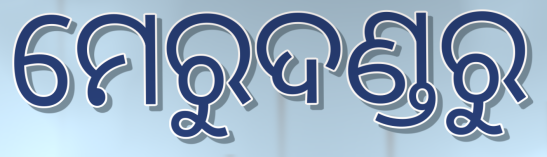
ମେରୁଦଣ୍ଡରୁ